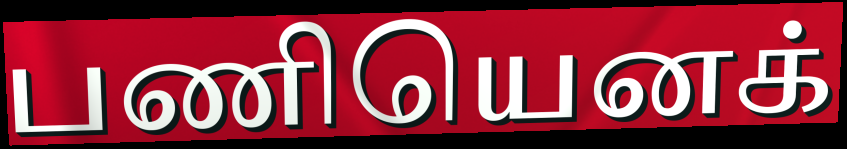
பணியெனக்